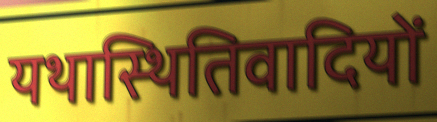
यथास्थितिवादियों